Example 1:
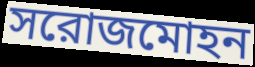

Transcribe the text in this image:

সরোজমোহন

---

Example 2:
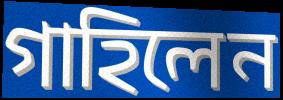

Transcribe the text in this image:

গাহিলেন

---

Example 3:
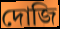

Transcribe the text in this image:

দোজি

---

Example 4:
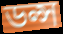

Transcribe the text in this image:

ডল্স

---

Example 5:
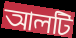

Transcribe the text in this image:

আলটি